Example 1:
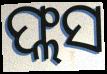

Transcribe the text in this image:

ଫ୍ଲସ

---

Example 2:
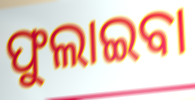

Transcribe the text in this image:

ଫୁଲାଇବା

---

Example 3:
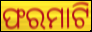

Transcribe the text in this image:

ଫରମାଟି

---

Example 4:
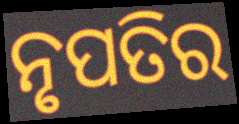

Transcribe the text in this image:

ନୃପତିର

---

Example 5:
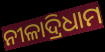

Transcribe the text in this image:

ନୀଳାଦ୍ରିଧାମ